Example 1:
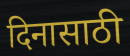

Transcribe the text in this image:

दिनासाठी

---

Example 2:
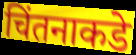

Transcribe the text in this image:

चिंतनाकडे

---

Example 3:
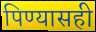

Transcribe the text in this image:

पिण्यासही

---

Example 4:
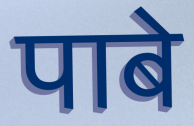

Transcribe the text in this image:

पाबे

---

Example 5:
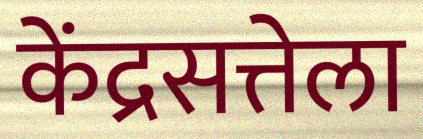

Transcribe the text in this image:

केंद्रसत्तेला